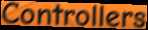
Controllers